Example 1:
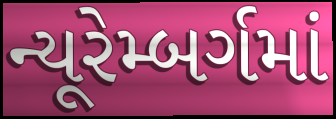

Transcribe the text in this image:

ન્યૂરેમ્બર્ગમાં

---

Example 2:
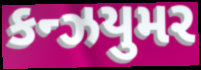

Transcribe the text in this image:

કન્ઝયુમર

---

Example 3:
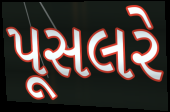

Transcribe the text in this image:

પૂસલરે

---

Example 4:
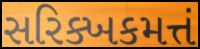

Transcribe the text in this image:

સરિક્ખકમત્તં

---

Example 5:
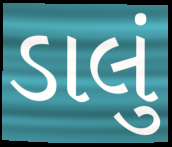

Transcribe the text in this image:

ડાલું